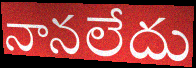
నానలేదు